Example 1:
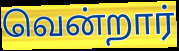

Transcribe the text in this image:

வென்றார்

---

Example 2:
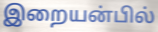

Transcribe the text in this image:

இறையன்பில்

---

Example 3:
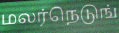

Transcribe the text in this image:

மலர்நெடுங்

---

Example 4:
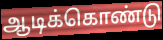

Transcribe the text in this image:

ஆடிக்கொண்டு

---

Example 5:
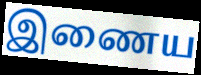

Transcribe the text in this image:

இணைய